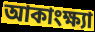
আকাংক্ষ্যা